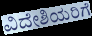
ವಿದೇಶಿಯರಿಗೆ